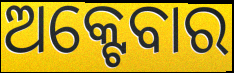
ଅକ୍ଟେବାର